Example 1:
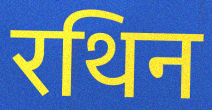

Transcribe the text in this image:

रथिन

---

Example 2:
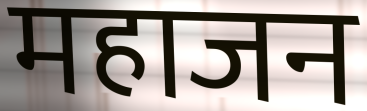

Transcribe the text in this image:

महाजन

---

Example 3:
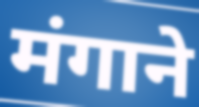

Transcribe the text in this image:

मंगाने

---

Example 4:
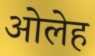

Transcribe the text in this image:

ओलेह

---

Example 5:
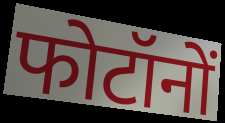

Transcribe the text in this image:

फोटॉनों